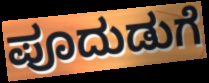
ಪೂದುಡುಗೆ